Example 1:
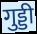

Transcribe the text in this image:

गुड्डी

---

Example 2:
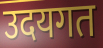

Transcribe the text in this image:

उदयगत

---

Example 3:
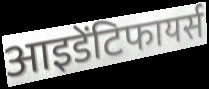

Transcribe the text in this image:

आइडेंटिफायर्स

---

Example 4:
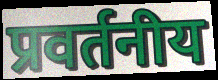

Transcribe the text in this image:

प्रवर्तनीय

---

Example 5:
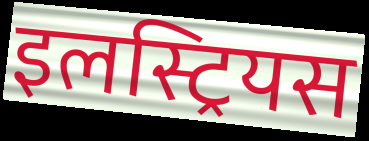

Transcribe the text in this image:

इलस्ट्रियस